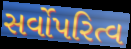
સર્વોપરિત્વ